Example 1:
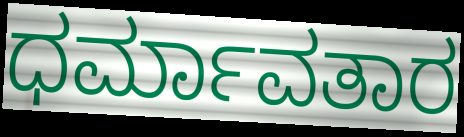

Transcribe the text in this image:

ಧರ್ಮಾವತಾರ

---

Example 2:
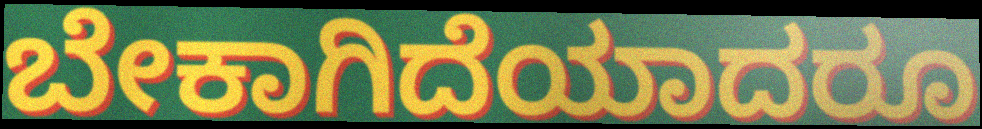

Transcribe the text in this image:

ಬೇಕಾಗಿದೆಯಾದರೂ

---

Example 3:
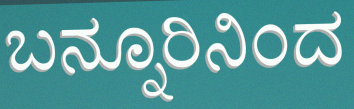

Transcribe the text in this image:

ಬನ್ನೂರಿನಿಂದ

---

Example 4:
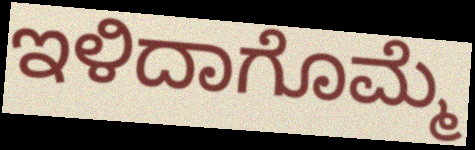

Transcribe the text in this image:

ಇಳಿದಾಗೊಮ್ಮೆ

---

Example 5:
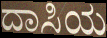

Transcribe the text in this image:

ದಾಸಿಯ